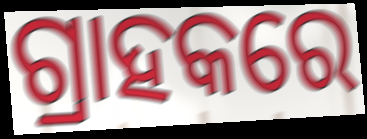
ଗ୍ରାହକରେ